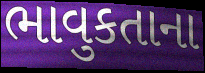
ભાવુકતાના